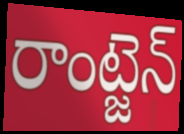
రాంట్జెన్